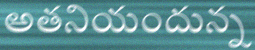
అతనియందున్న